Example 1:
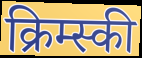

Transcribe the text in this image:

क्रिम्स्की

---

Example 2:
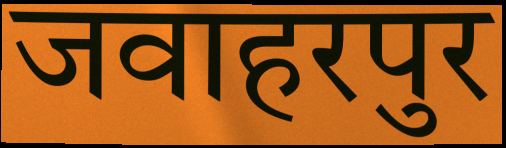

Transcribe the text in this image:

जवाहरपुर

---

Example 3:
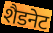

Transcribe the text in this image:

शैडनेट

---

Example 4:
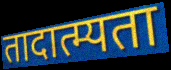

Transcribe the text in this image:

तादात्म्यता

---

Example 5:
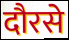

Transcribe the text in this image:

दौरसे